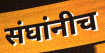
संघांनीच